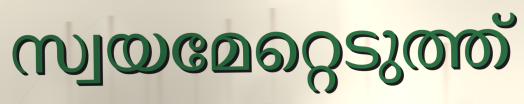
സ്വയമേറ്റെടുത്ത്